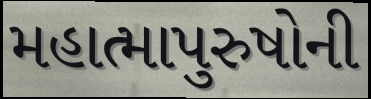
મહાત્માપુરુષોની